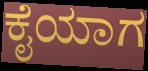
ಕೈಯಾಗ